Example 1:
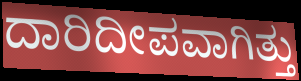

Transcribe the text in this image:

ದಾರಿದೀಪವಾಗಿತ್ತು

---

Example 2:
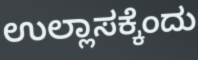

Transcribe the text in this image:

ಉಲ್ಲಾಸಕ್ಕೆಂದು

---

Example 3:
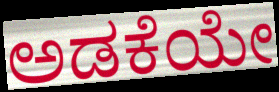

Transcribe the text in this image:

ಅಡಕೆಯೇ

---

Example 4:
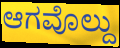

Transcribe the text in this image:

ಆಗವೊಲ್ದು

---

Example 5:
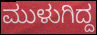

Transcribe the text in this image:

ಮುಳುಗಿದ್ದ